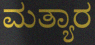
ಮತ್ಯಾರ